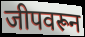
जीपवरून